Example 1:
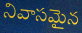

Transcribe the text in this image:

నివాసమైన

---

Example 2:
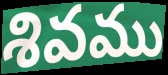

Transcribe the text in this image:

శివము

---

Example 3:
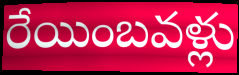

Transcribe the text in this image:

రేయింబవళ్లు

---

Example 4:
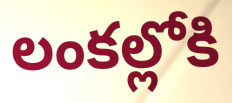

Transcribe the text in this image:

లంకల్లోకి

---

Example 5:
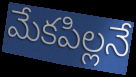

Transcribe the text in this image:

మేకపిల్లనే